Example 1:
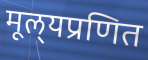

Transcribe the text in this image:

मूल्यप्रणित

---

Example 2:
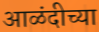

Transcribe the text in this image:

आळंदीच्या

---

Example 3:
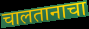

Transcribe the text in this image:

चालतानाचा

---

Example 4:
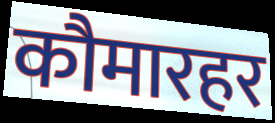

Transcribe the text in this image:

कौमारहर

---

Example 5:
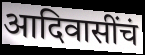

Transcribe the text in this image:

आदिवासींचं